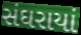
સંઘરાયાં